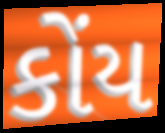
કોંય